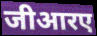
जीआरए